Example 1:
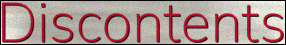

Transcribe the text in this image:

Discontents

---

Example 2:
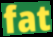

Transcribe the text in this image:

fat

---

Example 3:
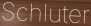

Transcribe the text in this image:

Schluter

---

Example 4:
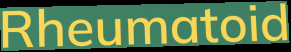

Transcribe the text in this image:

Rheumatoid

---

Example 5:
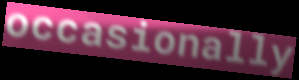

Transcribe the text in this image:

occasionally